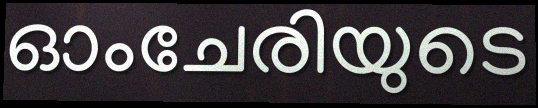
ഓംചേരിയുടെ